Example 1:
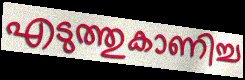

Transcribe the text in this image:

എടുത്തുകാണിച്ച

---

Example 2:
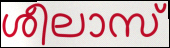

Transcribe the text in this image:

ശീലാസ്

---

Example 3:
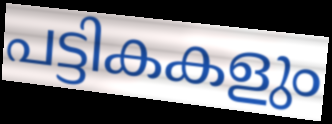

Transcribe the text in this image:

പട്ടികകളും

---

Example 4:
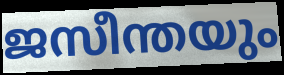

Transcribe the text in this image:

ജസീന്തയും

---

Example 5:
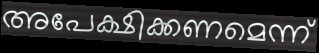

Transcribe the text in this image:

അപേക്ഷിക്കണമെന്ന്